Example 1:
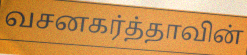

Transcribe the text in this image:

வசனகர்த்தாவின்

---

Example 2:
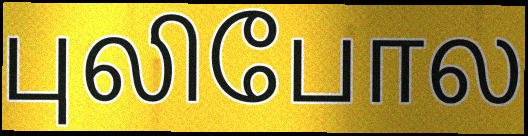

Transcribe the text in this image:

புலிபோல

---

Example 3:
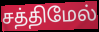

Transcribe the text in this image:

சத்திமேல்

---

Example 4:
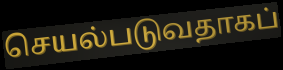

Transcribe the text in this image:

செயல்படுவதாகப்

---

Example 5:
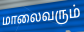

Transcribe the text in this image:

மாலைவரும்